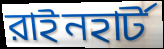
রাইনহার্ট